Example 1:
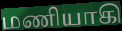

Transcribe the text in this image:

மணியாகி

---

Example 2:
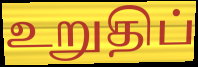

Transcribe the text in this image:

உறுதிப்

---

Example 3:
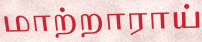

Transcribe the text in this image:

மாற்றாராய்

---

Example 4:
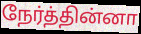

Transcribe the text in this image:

நேர்த்தின்னா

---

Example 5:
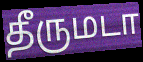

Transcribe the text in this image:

தீருமடா